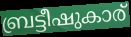
ബ്രട്ടീഷുകാര്